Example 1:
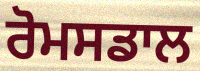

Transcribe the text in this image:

ਰੋਮਸਡਾਲ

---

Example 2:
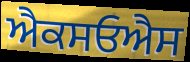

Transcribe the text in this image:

ਐਕਸਓਐਸ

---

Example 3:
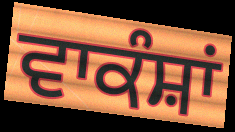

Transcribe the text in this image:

ਵਾਕੰਸ਼ਾਂ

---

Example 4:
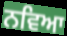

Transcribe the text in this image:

ਨਵਿਆ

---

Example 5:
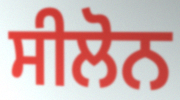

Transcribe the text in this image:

ਸੀਲੋਨ